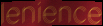
lenience